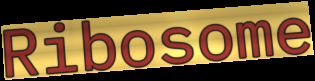
Ribosome